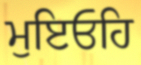
ਮੁਇਓਹਿ